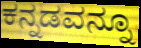
ಕನ್ನಡವನ್ನೂ